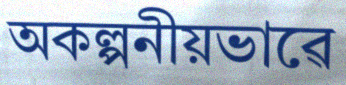
অকল্পনীয়ভাৱে